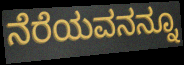
ನೆರೆಯವನನ್ನೂ